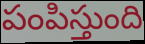
పంపిస్తుంది